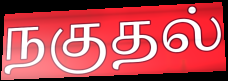
நகுதல்